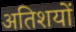
अतिशयों